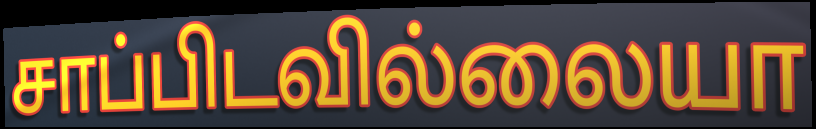
சாப்பிடவில்லையா